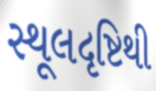
સ્થૂલદૃષ્ટિથી